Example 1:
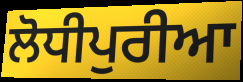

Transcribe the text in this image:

ਲੋਧੀਪੁਰੀਆ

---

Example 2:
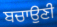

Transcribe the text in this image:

ਬਚਾਉਣੀ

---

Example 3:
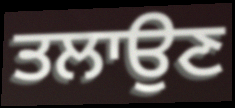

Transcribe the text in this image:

ਤਲਾਉਣ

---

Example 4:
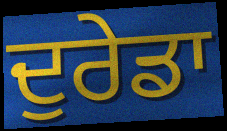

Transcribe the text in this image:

ਦੁਰੇਡਾ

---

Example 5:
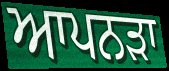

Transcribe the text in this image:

ਆਪਨੜਾ